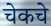
चेकचे